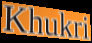
Khukri